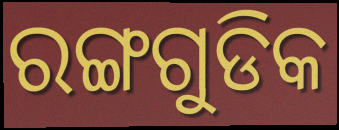
ରଙ୍ଗଗୁଡିକ